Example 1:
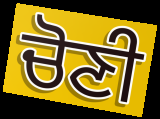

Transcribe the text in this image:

ਚੋਣੀ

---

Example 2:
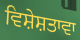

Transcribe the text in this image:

ਵਿਸ਼ੇਸ਼ਤਾਵਾ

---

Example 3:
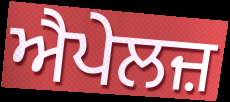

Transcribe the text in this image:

ਐਪੇਲਜ਼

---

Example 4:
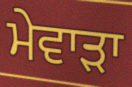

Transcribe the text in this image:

ਮੇਵਾੜਾ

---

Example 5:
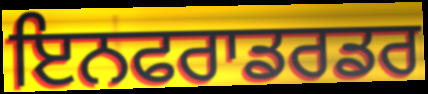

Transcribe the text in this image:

ਇਨਫਰਾਡਰਡਰ